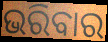
ଭରିବାର